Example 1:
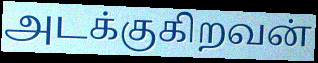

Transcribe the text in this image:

அடக்குகிறவன்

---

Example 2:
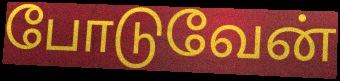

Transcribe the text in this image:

போடுவேன்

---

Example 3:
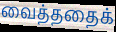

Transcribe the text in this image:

வைத்ததைக்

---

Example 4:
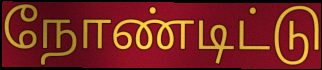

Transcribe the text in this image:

நோண்டிட்டு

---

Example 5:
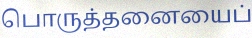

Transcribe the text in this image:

பொருத்தனையைப்